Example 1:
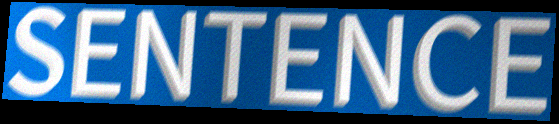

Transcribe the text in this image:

SENTENCE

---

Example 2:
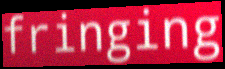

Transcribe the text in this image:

fringing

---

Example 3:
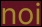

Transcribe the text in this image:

noi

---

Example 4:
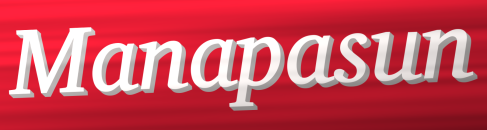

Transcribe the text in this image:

Manapasun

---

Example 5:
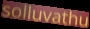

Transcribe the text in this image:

solluvathu